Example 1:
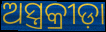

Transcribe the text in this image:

ଅସ୍ତ୍ରକ୍ରୀଡ଼ା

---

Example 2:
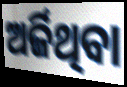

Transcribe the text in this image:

ଅର୍ଜିଥିବା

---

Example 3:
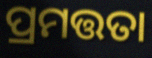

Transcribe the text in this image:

ପ୍ରମତ୍ତତା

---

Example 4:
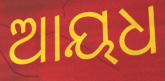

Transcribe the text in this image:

ଆୟଧ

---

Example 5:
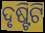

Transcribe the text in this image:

ଦୃଷ୍ଟିଟି